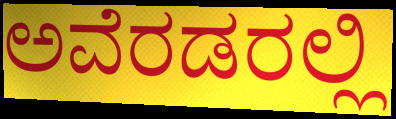
ಅವೆರಡರಲ್ಲಿ